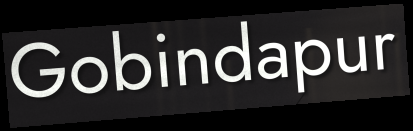
Gobindapur